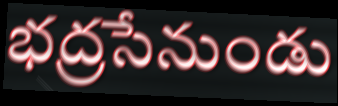
భద్రసేనుండు